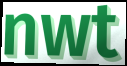
nwt